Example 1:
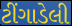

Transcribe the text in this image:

ટીંગાડેલી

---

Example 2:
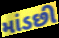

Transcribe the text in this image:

માંડછી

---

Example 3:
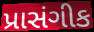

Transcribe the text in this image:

પ્રાસંગીક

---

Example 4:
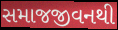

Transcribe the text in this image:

સમાજજીવનથી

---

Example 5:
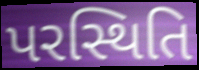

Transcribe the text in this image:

પરસ્થિતિ